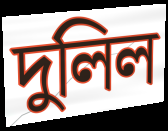
দুলিল